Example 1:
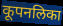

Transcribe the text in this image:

कूपनलिका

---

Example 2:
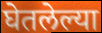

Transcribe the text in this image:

घेतलेल्या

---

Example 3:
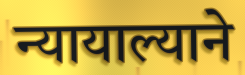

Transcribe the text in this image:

न्यायाल्याने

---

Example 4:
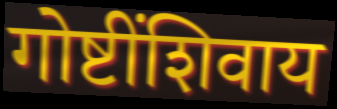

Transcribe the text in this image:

गोष्टींशिवाय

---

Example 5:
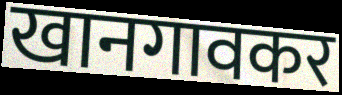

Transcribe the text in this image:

खानगावकर